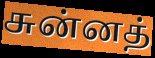
சுன்னத்